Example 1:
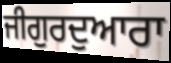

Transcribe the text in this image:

ਜੀਗੁਰਦੁਆਰਾ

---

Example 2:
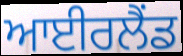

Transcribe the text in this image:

ਆਈਰਲੈਂਡ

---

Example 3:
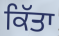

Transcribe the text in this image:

ਕਿੱਤਾ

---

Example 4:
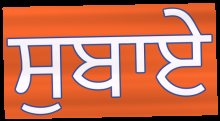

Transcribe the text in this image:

ਸੁਬਾਏ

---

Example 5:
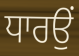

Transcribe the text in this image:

ਧਾਰਉਂ